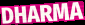
DHARMA